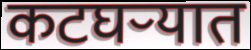
कटघऱ्यात